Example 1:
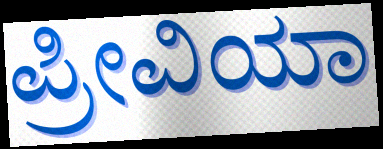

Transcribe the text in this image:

ಪ್ರೀವಿಯಾ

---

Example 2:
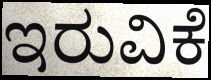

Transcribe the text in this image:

ಇರುವಿಕೆ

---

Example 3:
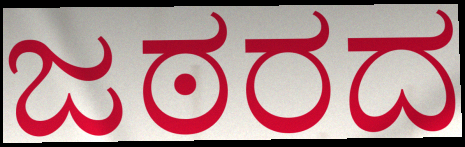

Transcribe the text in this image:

ಜಠರದ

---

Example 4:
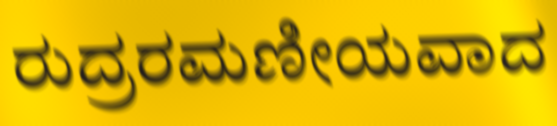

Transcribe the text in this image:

ರುದ್ರರಮಣೀಯವಾದ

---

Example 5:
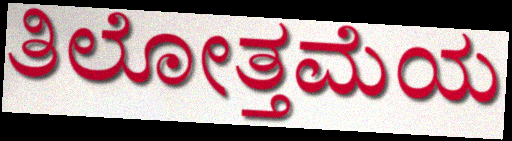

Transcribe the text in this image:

ತಿಲೋತ್ತಮೆಯ